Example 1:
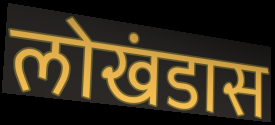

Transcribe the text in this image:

लोखंडास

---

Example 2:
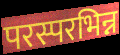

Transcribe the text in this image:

परस्परभिन्न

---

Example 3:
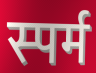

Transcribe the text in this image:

स्पर्म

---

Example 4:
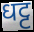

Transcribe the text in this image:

धट्ट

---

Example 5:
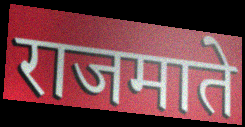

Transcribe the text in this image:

राजमाते